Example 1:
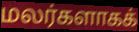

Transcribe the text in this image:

மலர்களாகக்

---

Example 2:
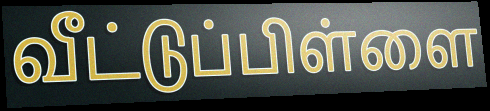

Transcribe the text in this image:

வீட்டுப்பிள்ளை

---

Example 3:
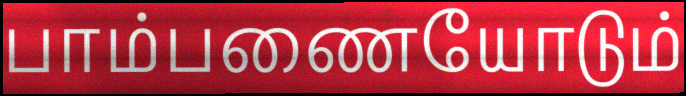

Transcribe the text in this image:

பாம்பணையோடும்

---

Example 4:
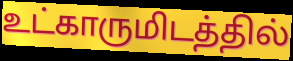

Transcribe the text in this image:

உட்காருமிடத்தில்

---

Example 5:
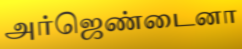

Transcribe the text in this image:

அர்ஜெண்டைனா